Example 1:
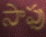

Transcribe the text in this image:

సాఫు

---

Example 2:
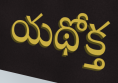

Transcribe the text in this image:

యథోక్త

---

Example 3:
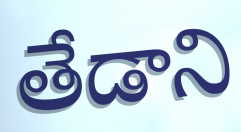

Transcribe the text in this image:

తేడాని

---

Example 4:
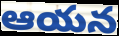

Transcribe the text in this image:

ఆయన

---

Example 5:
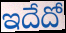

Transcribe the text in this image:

ఇదేదో